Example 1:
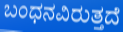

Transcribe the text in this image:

ಬಂಧನವಿರುತ್ತದೆ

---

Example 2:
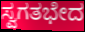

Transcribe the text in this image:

ಸ್ವಗತಭೇದ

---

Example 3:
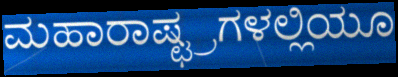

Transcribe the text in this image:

ಮಹಾರಾಷ್ಟ್ರಗಳಲ್ಲಿಯೂ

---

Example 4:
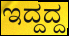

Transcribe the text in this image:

ಇದ್ದದ್ದ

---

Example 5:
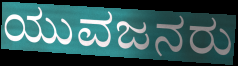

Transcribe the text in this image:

ಯುವಜನರು